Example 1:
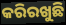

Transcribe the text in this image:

କରିରଖୁଛି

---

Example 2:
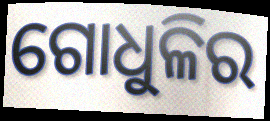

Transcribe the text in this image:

ଗୋଧୁଳିର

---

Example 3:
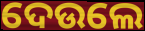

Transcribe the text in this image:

ଦେଉଲେ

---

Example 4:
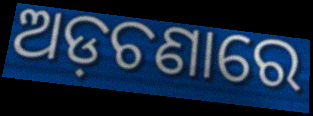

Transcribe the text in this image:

ଅଡ଼ଚଣାରେ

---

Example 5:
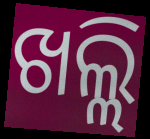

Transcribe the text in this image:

ଖଲ୍ଲି